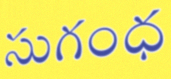
సుగంధ